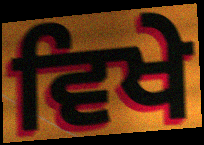
ਵਿਖੇ